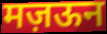
मज़ऊन